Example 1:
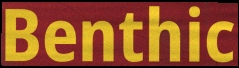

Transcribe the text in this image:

Benthic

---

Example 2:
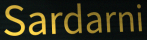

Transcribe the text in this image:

Sardarni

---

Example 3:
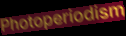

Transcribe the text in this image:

Photoperiodism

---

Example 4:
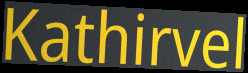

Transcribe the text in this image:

Kathirvel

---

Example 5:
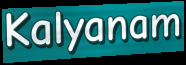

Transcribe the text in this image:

Kalyanam